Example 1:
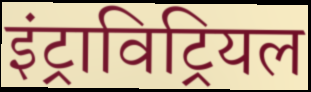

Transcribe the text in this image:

इंट्राविट्रियल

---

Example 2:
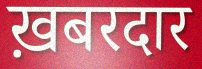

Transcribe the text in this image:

ख़बरदार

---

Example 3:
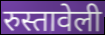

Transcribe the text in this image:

रुस्तावेली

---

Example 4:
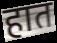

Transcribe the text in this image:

हात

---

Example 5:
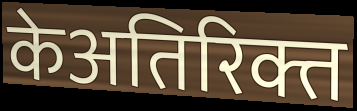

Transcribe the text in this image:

केअतिरिक्त